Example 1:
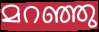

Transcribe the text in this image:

മറഞ്ഞു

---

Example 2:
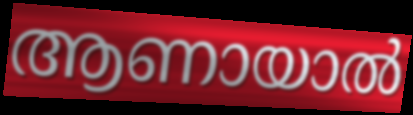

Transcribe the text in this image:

ആണായാൽ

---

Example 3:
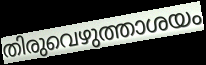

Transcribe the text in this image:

തിരുവെഴുത്താശയം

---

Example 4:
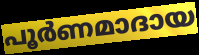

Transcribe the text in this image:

പൂർണമാദായ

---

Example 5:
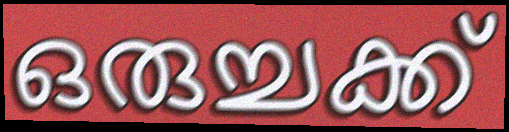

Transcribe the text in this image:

ഒരുച്ചക്ക്